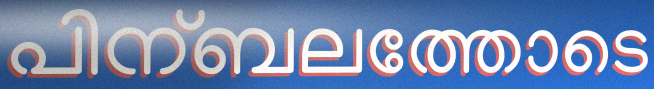
പിന്ബലത്തോടെ